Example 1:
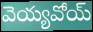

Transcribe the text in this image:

వెయ్యవోయ్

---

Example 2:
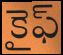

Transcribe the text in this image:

కైఫ్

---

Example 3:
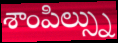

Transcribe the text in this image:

శాంపిల్స్ను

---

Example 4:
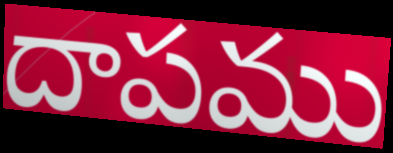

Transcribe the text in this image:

దాపము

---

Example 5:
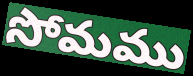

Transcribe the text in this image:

సోమము